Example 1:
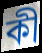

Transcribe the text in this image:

কী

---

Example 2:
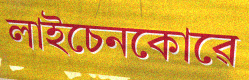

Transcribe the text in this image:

লাইচেনকোৱে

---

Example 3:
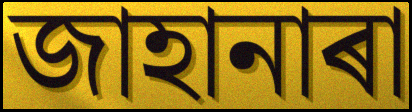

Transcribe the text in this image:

জাহানাৰা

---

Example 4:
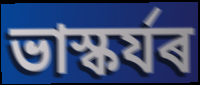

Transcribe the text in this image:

ভাস্কৰ্যৰ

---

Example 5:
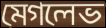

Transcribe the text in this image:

মেগলেভ